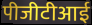
पीजीटीआई